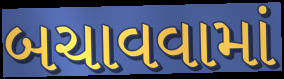
બચાવવામાં